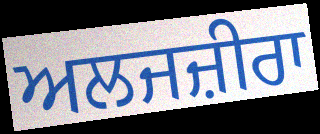
ਅਲਜਜ਼ੀਰਾ